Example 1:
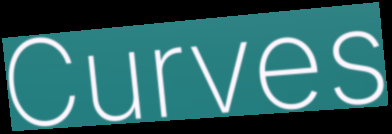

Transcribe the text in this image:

Curves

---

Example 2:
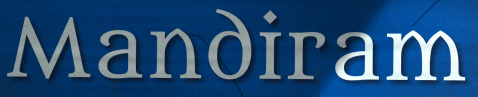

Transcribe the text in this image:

Mandiram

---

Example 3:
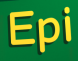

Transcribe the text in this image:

Epi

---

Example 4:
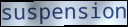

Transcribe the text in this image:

suspension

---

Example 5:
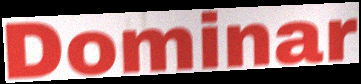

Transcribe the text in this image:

Dominar